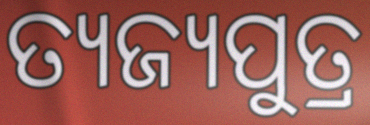
ତ୍ୟଜ୍ୟପୁତ୍ର